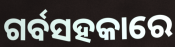
ଗର୍ବସହକାରେ